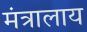
मंत्रालाय